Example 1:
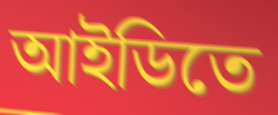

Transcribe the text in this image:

আইডিতে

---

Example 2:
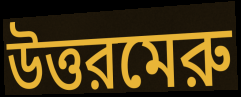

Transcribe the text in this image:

উত্তরমেরু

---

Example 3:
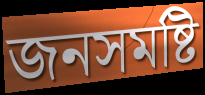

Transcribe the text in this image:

জনসমষ্টি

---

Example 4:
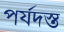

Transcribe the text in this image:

পর্যদস্ত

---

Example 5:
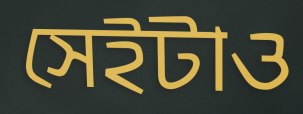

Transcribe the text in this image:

সেইটাও